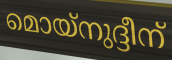
മൊയ്നുദ്ദീന്